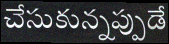
చేసుకున్నప్పుడే